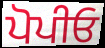
ਪੋਪੀਓ